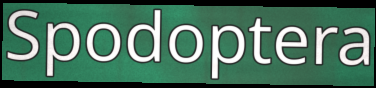
Spodoptera